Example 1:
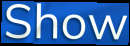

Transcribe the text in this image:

Show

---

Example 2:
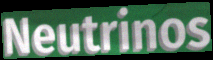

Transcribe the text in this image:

Neutrinos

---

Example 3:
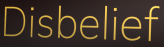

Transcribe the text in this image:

Disbelief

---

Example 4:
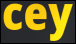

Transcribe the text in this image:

cey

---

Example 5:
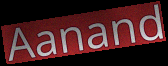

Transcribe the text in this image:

Aanand